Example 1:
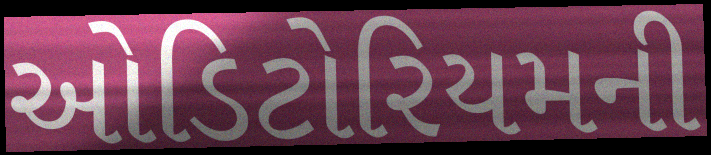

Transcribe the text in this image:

ઓડિટોરિયમની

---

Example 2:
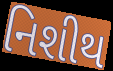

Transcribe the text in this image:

નિશીથ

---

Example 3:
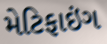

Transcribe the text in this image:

મેટિફાઇંગ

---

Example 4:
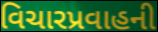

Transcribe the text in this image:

વિચારપ્રવાહની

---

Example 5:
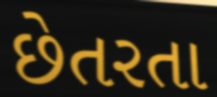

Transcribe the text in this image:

છેતરતા